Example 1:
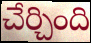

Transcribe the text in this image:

చేర్చింది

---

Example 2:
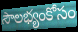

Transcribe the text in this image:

సౌలభ్యంకోసం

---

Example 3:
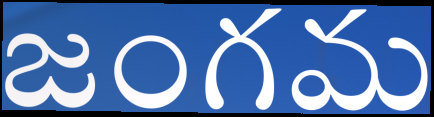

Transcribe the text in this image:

జంగమ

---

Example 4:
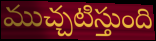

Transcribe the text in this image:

ముచ్చటిస్తుంది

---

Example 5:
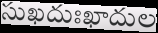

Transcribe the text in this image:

సుఖదుఃఖాదుల